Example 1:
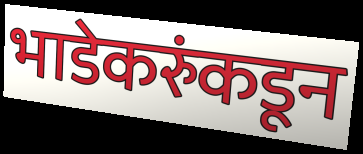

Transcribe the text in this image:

भाडेकरुंकडून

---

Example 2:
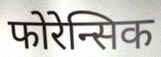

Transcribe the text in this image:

फोरेन्सिक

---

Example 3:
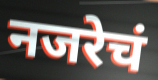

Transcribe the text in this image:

नजरेचं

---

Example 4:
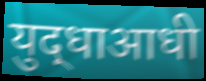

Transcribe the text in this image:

युद्धाआधी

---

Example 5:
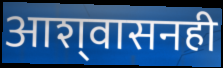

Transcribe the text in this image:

आश्वासनही